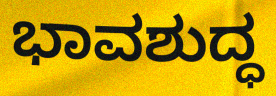
ಭಾವಶುದ್ಧ